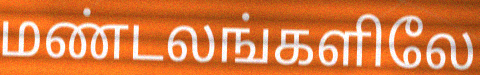
மண்டலங்களிலே